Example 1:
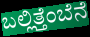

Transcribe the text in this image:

ಬಲ್ಲಿತ್ತೆಂಬೆನೆ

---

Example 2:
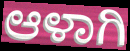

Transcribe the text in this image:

ಆಳಾಗಿ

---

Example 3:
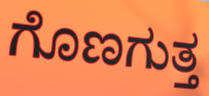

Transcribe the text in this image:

ಗೊಣಗುತ್ತ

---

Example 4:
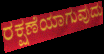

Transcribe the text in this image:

ರಕ್ಷಣೆಯಾಗುವುದು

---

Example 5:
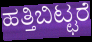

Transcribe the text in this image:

ಹತ್ತಿಬಿಟ್ಟರೆ